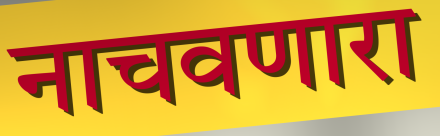
नाचवणारा